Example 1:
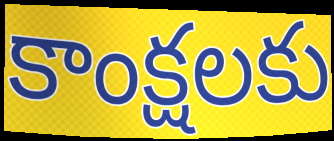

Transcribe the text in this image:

కాంక్షలకు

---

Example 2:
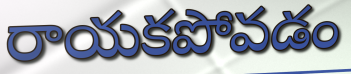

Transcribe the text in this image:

రాయకపోవడం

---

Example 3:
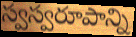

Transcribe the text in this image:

స్వస్వరూపాన్ని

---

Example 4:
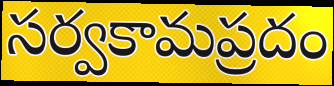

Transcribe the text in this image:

సర్వకామప్రదం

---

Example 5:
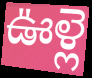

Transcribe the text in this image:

ఊళ్లె